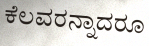
ಕೆಲವರನ್ನಾದರೂ